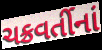
ચક્રવર્તીનાં